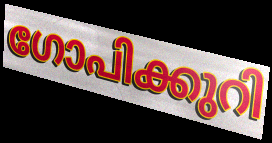
ഗോപിക്കുറി